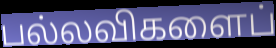
பல்லவிகளைப்